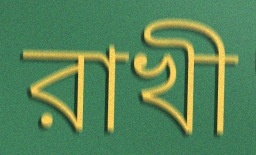
রাখী